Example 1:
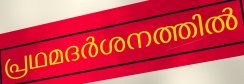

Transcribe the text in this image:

പ്രഥമദർശനത്തിൽ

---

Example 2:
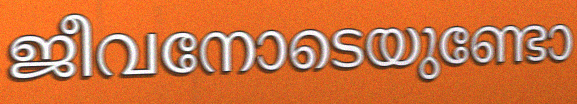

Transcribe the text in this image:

ജീവനോടെയുണ്ടോ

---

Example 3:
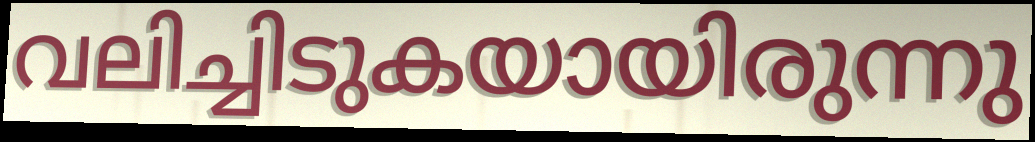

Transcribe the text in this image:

വലിച്ചിടുകയായിരുന്നു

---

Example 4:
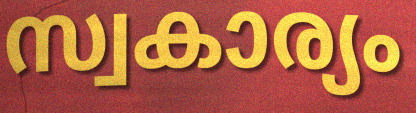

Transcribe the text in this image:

സ്വകാര്യം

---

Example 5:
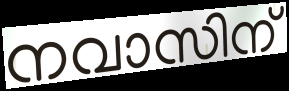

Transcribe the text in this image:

നവാസിന്